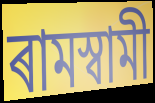
ৰামস্বামী